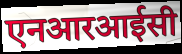
एनआरआईसी